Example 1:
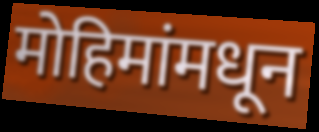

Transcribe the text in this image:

मोहिमांमधून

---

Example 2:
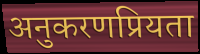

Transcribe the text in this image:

अनुकरणप्रियता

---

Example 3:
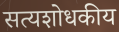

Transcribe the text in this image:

सत्यशोधकीय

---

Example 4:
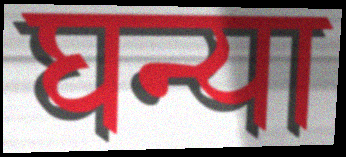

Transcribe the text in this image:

घन्या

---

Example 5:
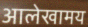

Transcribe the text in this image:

आलेखामय